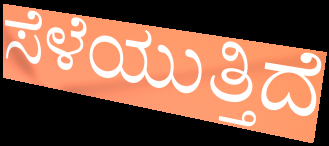
ಸೆಳೆಯುತ್ತಿದೆ